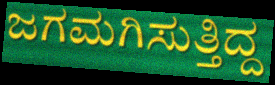
ಜಗಮಗಿಸುತ್ತಿದ್ದ